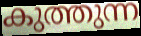
കുത്തുന്ന